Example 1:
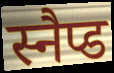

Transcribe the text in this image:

स्नैप्ड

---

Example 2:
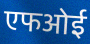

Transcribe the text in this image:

एफओई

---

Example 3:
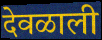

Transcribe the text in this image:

देवळाली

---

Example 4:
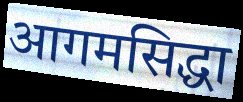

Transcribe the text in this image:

आगमसिद्धा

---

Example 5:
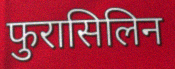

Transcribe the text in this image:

फुरासिलिन